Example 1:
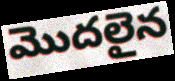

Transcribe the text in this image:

మొదలైన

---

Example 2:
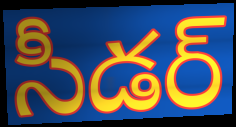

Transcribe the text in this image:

సీడర్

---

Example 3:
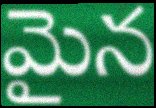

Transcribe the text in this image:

మైన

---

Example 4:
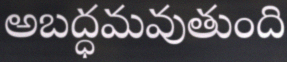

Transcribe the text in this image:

అబద్ధమవుతుంది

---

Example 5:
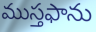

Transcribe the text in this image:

ముస్తఫాను